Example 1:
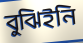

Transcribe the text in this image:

বুঝিইনি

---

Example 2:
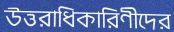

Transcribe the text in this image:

উত্তরাধিকারিণীদের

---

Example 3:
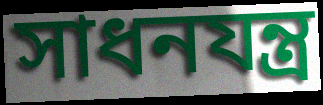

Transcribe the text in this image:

সাধনযন্ত্র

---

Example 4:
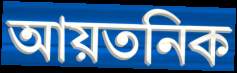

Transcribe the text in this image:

আয়তনিক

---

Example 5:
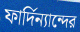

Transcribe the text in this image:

ফার্দিন্যান্দের